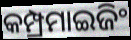
କମ୍ପ୍ରମାଇଜିଂ